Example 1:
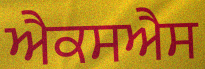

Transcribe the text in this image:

ਐਕਸਐਸ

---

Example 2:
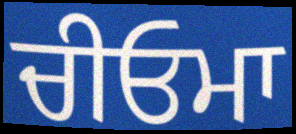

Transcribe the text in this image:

ਚੀਓਮਾ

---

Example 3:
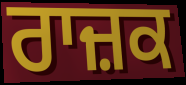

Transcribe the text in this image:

ਰਾਜ਼ਕ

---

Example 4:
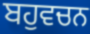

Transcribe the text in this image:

ਬਹੁਵਚਨ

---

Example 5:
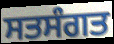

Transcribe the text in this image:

ਸਤਸੰਗਤ